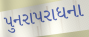
પુનરાપરાધના